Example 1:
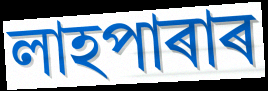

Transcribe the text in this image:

লাহপাৰাৰ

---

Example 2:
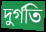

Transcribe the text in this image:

দুৰ্গতি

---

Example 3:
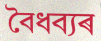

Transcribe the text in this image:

বৈধব্যৰ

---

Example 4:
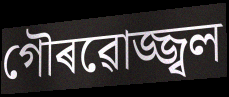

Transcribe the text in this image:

গৌৰৱোজ্জ্বল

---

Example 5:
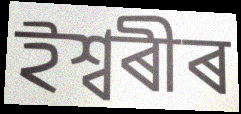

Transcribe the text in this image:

ইশ্বৰীৰ